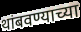
थांबवण्याच्या